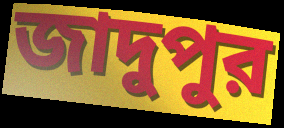
জাদুপুর